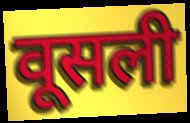
वूसली